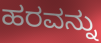
ಹರವನ್ನು